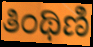
ತಿಂಥಿಣಿ